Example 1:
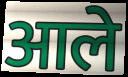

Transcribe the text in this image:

आले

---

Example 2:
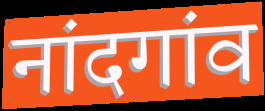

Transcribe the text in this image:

नांदगांव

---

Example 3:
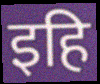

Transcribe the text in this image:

इहि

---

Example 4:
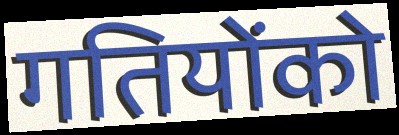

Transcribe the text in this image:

गतियोंको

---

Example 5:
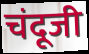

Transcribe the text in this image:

चंदूजी